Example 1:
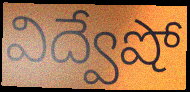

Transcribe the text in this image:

విద్వేషో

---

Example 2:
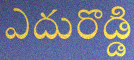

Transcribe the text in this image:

ఎదురొడ్డి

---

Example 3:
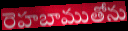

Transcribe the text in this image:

రెహబాముతోను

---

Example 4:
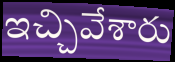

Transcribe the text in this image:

ఇచ్చివేశారు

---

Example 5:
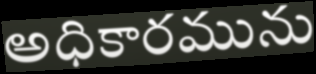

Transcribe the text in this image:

అధికారమును